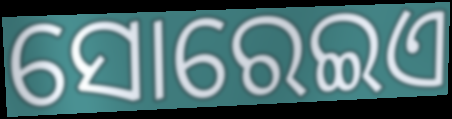
ସୋରେଇଏ